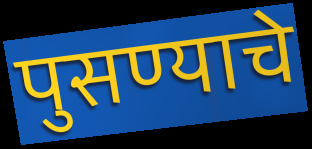
पुसण्याचे